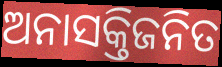
ଅନାସକ୍ତିଜନିତ